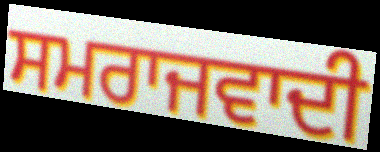
ਸਮਰਾਜਵਾਦੀ